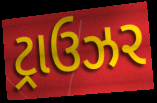
ટ્રાઉઝર